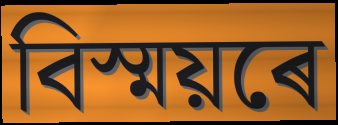
বিস্ময়ৰে